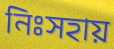
নিঃসহায়